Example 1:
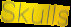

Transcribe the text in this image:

Skulls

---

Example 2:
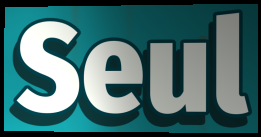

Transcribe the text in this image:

Seul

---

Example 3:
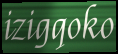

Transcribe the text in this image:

izigqoko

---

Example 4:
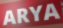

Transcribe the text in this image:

ARYA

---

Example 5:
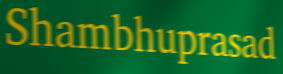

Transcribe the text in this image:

Shambhuprasad